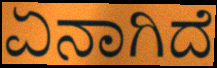
ಏನಾಗಿದೆ